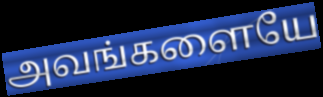
அவங்களையே